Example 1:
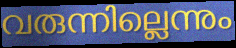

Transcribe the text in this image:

വരുന്നില്ലെന്നും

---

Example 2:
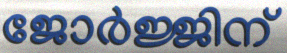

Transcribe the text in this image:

ജോർജ്ജിന്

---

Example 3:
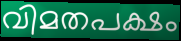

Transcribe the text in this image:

വിമതപക്ഷം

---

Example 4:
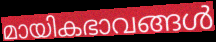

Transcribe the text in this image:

മായികഭാവങ്ങൾ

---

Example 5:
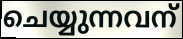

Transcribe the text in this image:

ചെയ്യുന്നവന്